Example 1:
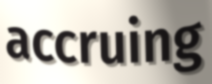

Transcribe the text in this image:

accruing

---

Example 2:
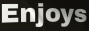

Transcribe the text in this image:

Enjoys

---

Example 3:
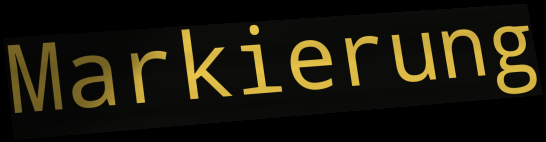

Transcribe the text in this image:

Markierung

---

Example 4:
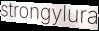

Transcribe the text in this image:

strongylura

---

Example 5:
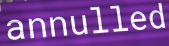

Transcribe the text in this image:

annulled